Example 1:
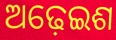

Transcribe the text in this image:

ଅଢ଼େଇଶ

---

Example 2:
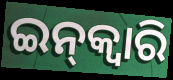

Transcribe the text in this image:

ଇନ୍‌କ୍ଵାରି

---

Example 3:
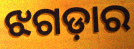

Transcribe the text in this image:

ଝଗଡ଼ାର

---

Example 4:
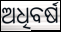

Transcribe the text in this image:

ଅଧିବର୍ଷ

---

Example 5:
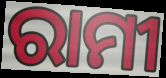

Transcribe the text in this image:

ରାମୀ